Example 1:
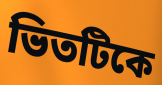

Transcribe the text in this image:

ভিতটিকে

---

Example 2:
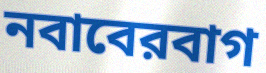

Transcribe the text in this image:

নবাবেরবাগ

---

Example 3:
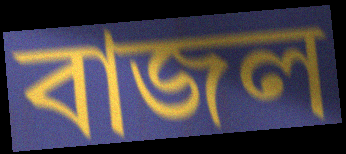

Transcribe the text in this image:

বাজল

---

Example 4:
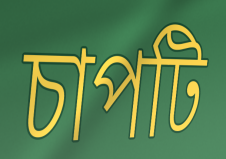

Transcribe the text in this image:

চাপটি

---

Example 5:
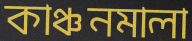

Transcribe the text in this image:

কাঞ্চনমালা